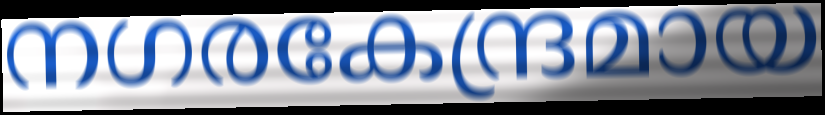
നഗരകേന്ദ്രമായ